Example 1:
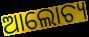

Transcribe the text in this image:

ଆଲୋଚ୍ୟ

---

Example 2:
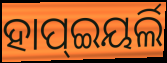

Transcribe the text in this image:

ହାପ୍ଇୟର୍ଲି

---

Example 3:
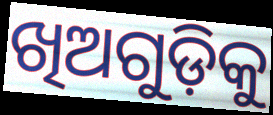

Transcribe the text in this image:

ଖିଅଗୁଡ଼ିକୁ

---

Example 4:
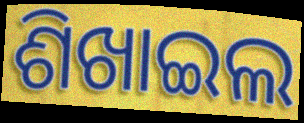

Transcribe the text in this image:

ଶିଖାଇଲ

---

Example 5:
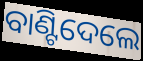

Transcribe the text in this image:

ବାଣ୍ଟିଦେଲେ